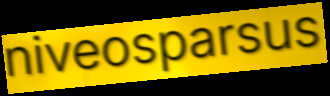
niveosparsus